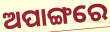
ଅପାଙ୍ଗରେ